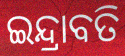
ଇନ୍ଦ୍ରାବତି